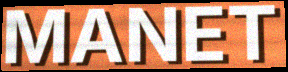
MANET